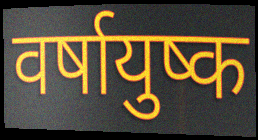
वर्षायुष्क